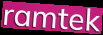
ramtek